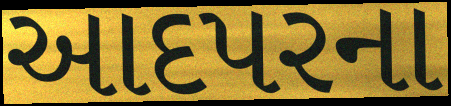
આદપરના